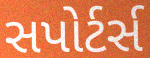
સપોર્ટર્સ